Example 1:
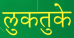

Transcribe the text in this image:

लुकतुके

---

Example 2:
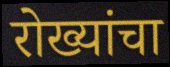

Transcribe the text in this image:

रोख्यांचा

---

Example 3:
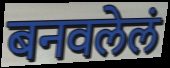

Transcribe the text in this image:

बनवलेलं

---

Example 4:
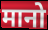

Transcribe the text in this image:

मानो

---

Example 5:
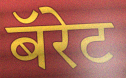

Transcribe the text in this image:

बॅरेट